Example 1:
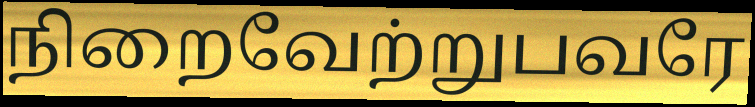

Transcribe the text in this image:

நிறைவேற்றுபவரே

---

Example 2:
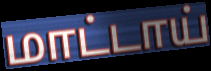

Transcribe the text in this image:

மாட்டாய்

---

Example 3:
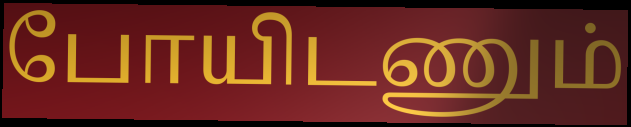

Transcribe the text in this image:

போயிடணும்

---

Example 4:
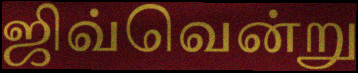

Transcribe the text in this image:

ஜிவ்வென்று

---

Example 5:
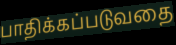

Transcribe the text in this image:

பாதிக்கப்படுவதை